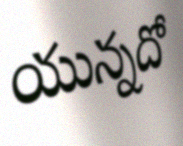
యున్నదో